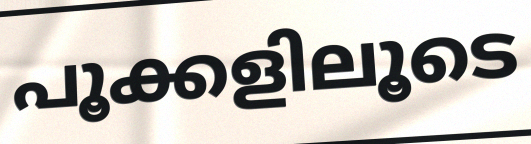
പൂക്കളിലൂടെ